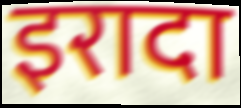
इरादा